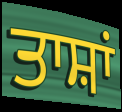
ਤਾਸ਼ਾਂ